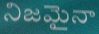
నిజమైనా